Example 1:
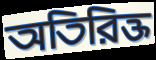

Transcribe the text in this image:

অতিরিক্ত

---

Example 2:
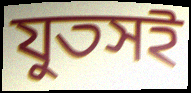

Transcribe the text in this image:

যুতসই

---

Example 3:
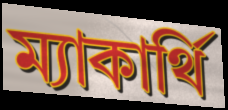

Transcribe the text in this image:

ম্যাকার্থি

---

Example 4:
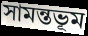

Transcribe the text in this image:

সামন্তভূম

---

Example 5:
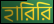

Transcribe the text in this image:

হারিরি